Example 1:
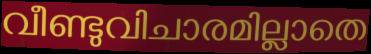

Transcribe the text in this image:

വീണ്ടുവിചാരമില്ലാതെ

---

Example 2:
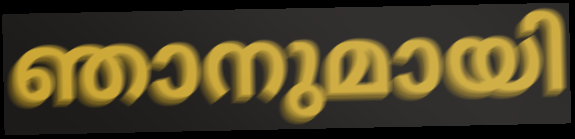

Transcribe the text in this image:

ഞാനുമായി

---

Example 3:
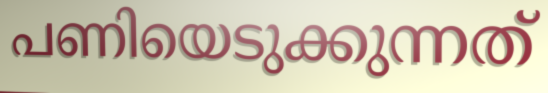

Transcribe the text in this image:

പണിയെടുക്കുന്നത്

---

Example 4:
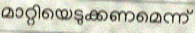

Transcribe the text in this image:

മാറ്റിയെടുക്കണമെന്ന്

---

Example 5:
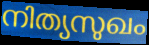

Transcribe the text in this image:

നിത്യസുഖം